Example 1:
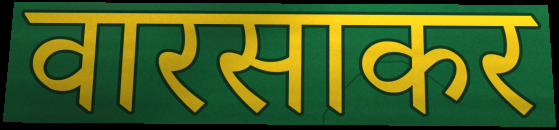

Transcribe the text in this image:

वारसाकर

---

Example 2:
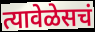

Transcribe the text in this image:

त्यावेळेसचं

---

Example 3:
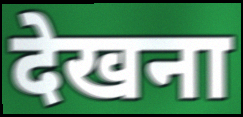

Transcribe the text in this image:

देखना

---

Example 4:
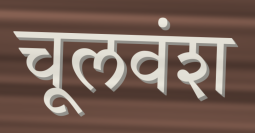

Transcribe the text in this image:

चूलवंश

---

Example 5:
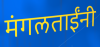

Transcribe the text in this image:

मंगलताईंनी